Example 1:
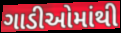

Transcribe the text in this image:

ગાડીઓમાંથી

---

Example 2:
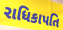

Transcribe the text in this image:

રાધિકાપતિ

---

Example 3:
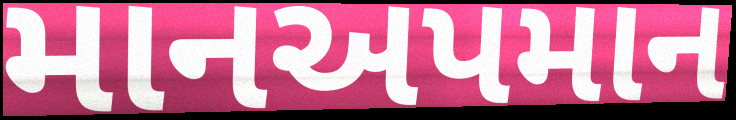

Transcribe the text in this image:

માનઅપમાન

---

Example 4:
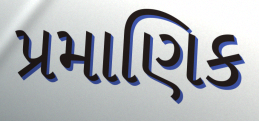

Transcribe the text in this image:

પ્રમાણિક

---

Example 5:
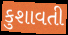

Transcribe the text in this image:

કુશાવતી